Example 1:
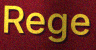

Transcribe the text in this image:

Rege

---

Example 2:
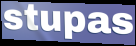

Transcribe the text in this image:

stupas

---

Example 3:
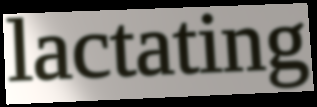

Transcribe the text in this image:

lactating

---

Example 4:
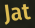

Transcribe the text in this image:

Jat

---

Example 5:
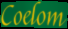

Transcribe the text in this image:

Coelom